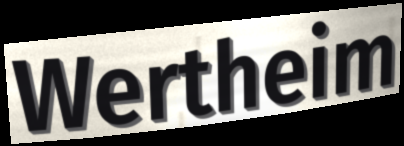
Wertheim